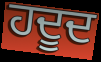
ਹਦੂਦ